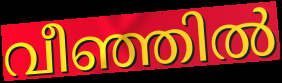
വീഞ്ഞിൽ